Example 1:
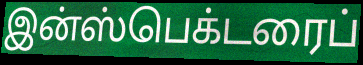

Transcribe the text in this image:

இன்ஸ்பெக்டரைப்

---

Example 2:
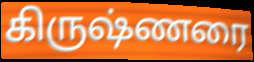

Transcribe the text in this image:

கிருஷ்ணரை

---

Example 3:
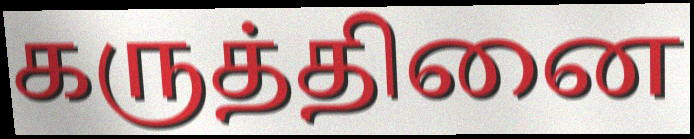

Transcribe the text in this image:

கருத்தினை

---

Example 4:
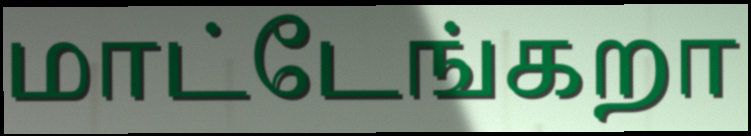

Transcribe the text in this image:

மாட்டேங்கறா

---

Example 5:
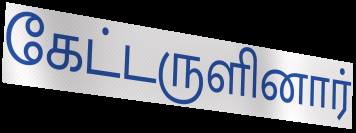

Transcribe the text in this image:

கேட்டருளினார்